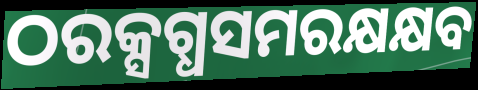
ଠରକ୍ସଗ୍ଧସମରକ୍ଷକ୍ଷବ